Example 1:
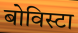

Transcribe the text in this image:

बोविस्टा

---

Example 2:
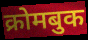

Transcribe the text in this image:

क्रोमबुक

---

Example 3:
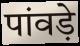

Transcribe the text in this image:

पांवड़े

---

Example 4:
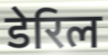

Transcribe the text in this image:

डेरिल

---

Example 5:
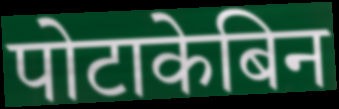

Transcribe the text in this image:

पोटाकेबिन